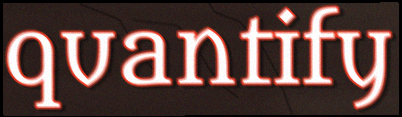
quantify